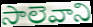
సాలెవాని